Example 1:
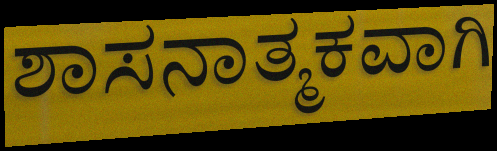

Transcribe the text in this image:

ಶಾಸನಾತ್ಮಕವಾಗಿ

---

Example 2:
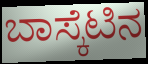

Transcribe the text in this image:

ಬಾಸ್ಕೆಟಿನ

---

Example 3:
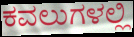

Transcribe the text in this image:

ಕವಲುಗಳಲ್ಲಿ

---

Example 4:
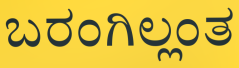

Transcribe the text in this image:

ಬರಂಗಿಲ್ಲಂತ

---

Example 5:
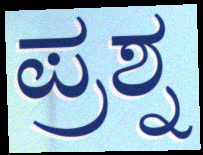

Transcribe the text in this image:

ಪ್ರಶ್ನ